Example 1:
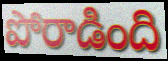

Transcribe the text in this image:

పోరాడింది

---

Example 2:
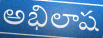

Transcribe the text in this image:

అభిలాష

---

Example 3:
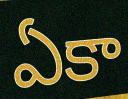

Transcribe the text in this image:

ఏకా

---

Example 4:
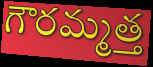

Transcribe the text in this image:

గౌరమ్మత్త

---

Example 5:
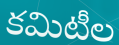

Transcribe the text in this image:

కమిటీల